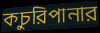
কচুরিপানার